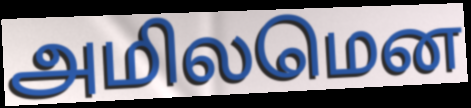
அமிலமென